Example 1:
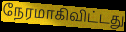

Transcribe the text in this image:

நேரமாகிவிட்டது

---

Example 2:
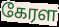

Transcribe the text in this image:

கேரள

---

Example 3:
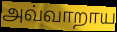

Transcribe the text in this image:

அவ்வாறாய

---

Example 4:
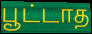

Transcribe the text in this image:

பூட்டாத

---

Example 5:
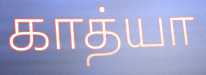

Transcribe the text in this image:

காத்யா